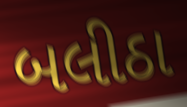
બલીઠા